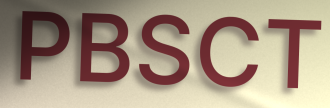
PBSCT